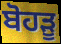
ਬੋਹੜੂ